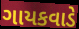
ગાયકવાડે